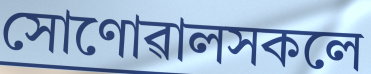
সোণোৱালসকলে